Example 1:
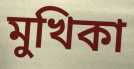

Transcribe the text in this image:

মুখিকা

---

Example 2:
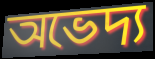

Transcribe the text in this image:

অভেদ্য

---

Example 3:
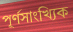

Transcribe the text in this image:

পূর্ণসাংখ্যিক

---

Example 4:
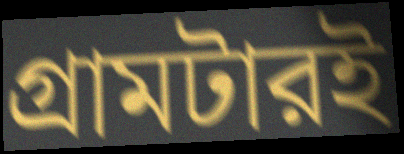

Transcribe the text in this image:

গ্রামটারই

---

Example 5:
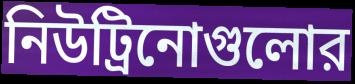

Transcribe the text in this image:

নিউট্রিনোগুলোর